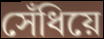
সেঁধিয়ে